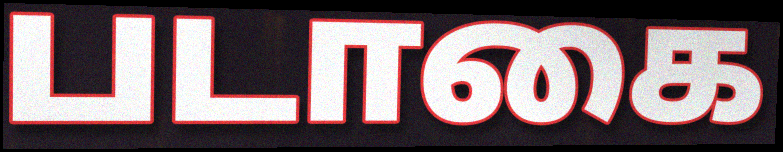
படாகை